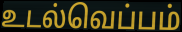
உடல்வெப்பம்